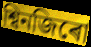
শ্বিনজিৰো